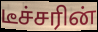
டீச்சரின்